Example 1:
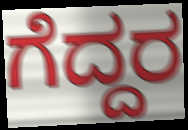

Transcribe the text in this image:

ಗೆದ್ದರ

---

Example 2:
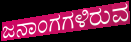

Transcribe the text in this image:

ಜನಾಂಗಗಳಿರುವ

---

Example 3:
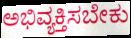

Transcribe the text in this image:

ಅಭಿವ್ಯಕ್ತಿಸಬೇಕು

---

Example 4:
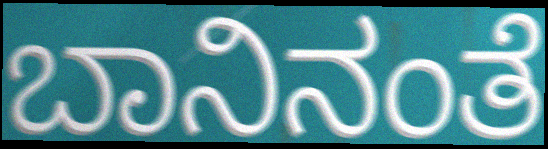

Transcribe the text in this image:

ಬಾನಿನಂತೆ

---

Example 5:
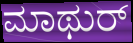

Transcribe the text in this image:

ಮಾಥುರ್